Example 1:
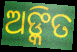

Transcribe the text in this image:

ଅଙ୍କିତ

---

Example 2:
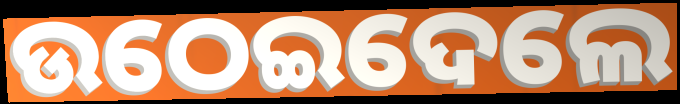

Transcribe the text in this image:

ଉଠେଇଦେଲେ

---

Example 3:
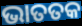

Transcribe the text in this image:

ଭାତତକ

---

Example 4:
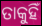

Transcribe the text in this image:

ତାକୁହିଁ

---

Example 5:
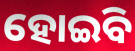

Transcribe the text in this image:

ହୋଇିବ